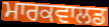
ਮਾਰਕਵਾਲਡ